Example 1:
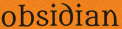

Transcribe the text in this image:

obsidian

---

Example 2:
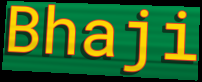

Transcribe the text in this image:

Bhaji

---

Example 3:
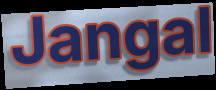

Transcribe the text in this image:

Jangal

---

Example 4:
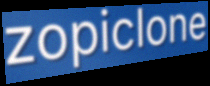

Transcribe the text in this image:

zopiclone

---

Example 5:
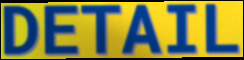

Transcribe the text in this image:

DETAIL